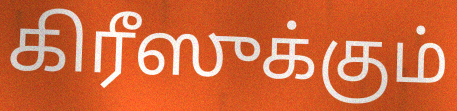
கிரீஸுக்கும்